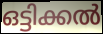
ഒട്ടിക്കൽ